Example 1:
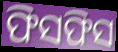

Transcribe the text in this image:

ଫିସଫିସ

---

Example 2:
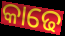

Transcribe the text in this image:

କାଢେ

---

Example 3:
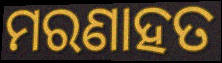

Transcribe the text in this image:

ମରଣାହତ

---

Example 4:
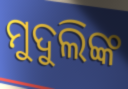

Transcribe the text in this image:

ମୁଦୁଲିଙ୍କ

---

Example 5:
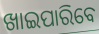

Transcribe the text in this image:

ଖାଇପାରିବେ